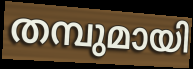
തമ്പുമായി